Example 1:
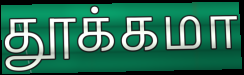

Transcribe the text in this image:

தூக்கமா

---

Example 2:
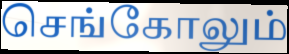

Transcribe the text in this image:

செங்கோலும்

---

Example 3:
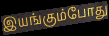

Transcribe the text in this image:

இயங்கும்போது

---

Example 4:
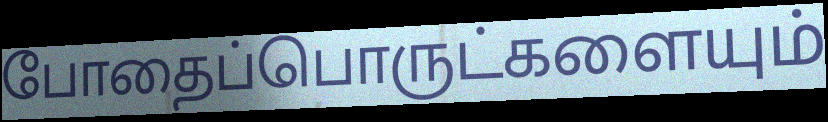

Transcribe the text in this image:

போதைப்பொருட்களையும்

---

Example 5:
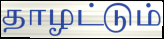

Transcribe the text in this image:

தாழட்டும்